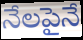
నేలపైనే